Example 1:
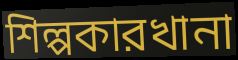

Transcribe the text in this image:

শিল্পকারখানা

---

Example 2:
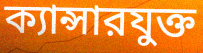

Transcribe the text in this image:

ক্যান্সারযুক্ত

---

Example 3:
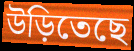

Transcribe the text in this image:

উড়িতেছে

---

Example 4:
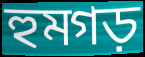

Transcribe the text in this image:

হুমগড়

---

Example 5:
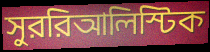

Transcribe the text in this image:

সুররিআলিস্টিক